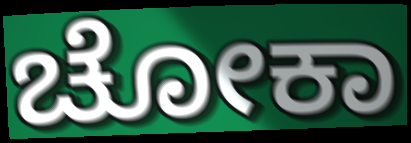
ಚೋಕಾ